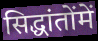
सिद्धांतोंमें